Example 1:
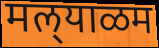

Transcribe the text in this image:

मल्याळम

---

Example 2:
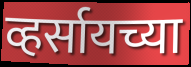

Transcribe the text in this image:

व्हर्सायच्या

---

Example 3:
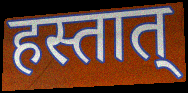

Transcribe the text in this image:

हस्तात्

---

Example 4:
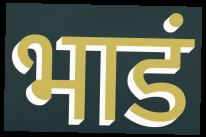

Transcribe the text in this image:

भाडं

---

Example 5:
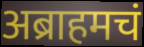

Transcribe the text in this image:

अब्राहमचं